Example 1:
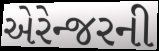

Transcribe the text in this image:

એરેન્જરની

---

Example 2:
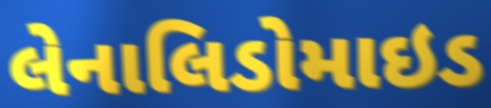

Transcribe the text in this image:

લેનાલિડોમાઇડ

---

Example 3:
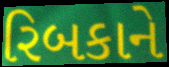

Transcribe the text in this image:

રિબકાને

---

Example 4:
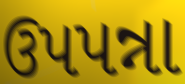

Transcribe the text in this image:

ઉપપન્ના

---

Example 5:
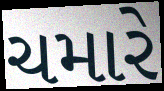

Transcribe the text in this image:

ચમારે